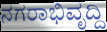
ನಗರಾಭಿವೃದ್ದಿ